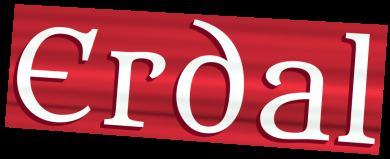
Erdal